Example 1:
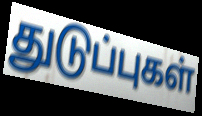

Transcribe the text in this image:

துடுப்புகள்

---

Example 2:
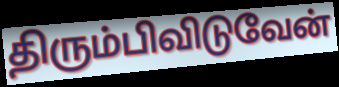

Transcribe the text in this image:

திரும்பிவிடுவேன்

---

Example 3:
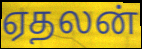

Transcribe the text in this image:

ஏதலன்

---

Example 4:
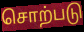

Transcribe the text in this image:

சொற்படு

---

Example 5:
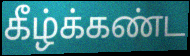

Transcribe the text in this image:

கீழ்க்கண்ட